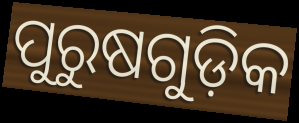
ପୁରୁଷଗୁଡ଼ିକ